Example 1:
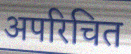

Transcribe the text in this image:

अपरिचित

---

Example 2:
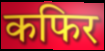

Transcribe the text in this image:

कफिर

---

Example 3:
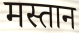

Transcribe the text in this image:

मस्तान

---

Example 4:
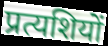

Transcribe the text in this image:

प्रत्यशियों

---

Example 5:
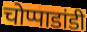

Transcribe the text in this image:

चोप्पाडांडी